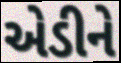
એડીને